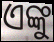
ଏଙ୍କୁ